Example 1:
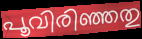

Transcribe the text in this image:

പൂവിരിഞ്ഞതു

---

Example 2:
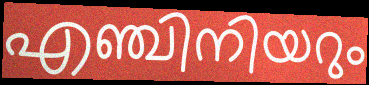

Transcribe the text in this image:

എഞ്ചിനിയറും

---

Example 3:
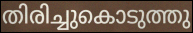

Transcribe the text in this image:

തിരിച്ചുകൊടുത്തു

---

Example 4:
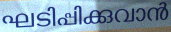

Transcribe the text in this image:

ഘടിപ്പിക്കുവാൻ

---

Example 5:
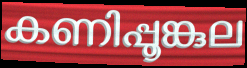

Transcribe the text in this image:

കണിപ്പൂങ്കുല